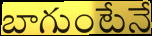
బాగుంటేనే